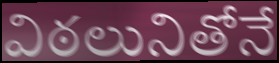
విఠలునితోనే